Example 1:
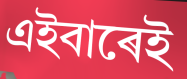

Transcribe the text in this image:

এইবাৰেই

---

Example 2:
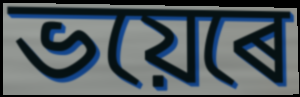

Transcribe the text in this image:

ভয়েৰে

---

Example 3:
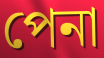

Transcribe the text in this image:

পেনা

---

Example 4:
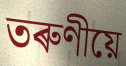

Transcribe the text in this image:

তৰুণীয়ে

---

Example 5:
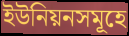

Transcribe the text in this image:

ইউনিয়নসমূহে